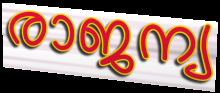
രാജന്യ